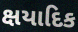
ક્ષયાદિક